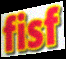
fisf